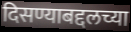
दिसण्याबद्दलच्या